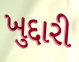
ખુદ્દારી